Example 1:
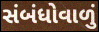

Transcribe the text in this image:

સંબંધોવાળું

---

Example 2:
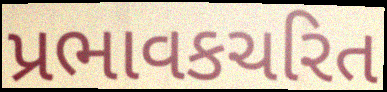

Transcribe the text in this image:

પ્રભાવકચરિત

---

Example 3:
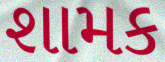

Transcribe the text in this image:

શામક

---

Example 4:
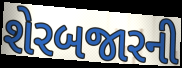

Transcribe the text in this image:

શેરબજારની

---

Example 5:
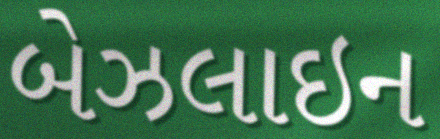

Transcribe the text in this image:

બેઝલાઇન